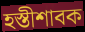
হস্তীশাবক